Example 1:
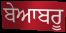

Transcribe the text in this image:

ਬੇਆਬਰੂ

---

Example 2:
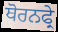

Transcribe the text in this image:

ਥੋਰਨਫ੍ਰੇ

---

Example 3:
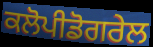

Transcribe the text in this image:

ਕਲੋਪੀਡੋਗਰੇਲ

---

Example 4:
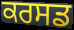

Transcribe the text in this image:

ਕਰਸਡ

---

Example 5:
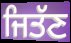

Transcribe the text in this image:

ਜਿਤੱਣ